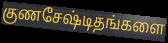
குணசேஷ்டிதங்களை